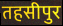
तहसीपुर